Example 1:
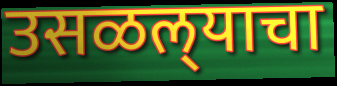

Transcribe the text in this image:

उसळल्याचा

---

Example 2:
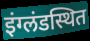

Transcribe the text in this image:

इंग्लंडस्थित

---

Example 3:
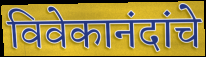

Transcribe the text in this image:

विवेकानंदांचे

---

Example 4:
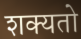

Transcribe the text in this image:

शक्यतो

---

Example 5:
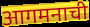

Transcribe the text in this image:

आगमनाची